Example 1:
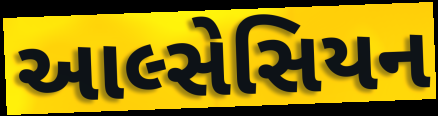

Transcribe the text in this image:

આલ્સેસિયન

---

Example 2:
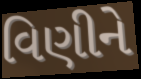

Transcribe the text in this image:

વિણીને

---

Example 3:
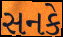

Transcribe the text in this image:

સનકે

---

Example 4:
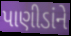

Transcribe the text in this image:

પાણીડાંને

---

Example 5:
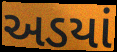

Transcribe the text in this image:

અડયાં